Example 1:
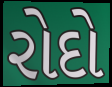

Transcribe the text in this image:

રોદો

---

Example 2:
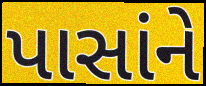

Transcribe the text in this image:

પાસાંને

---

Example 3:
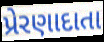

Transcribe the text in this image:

પ્રેરણાદાતા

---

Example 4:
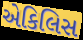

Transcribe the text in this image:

એકિલિસ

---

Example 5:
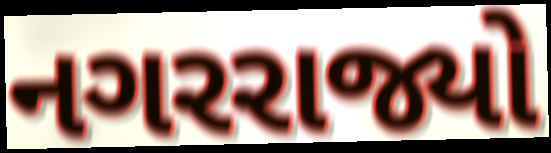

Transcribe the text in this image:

નગરરાજ્યો